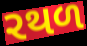
રથળ